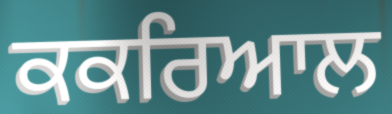
ਕਕਰਿਆਲ